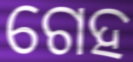
ଗେହ